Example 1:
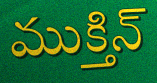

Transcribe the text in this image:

ముక్తిన్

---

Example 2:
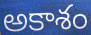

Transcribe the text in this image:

అకాశం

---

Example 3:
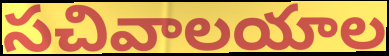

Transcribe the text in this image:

సచివాలయాల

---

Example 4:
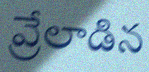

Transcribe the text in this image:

వ్రేలాడిన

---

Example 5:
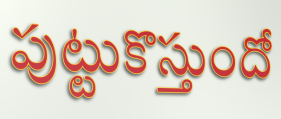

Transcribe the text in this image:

పుట్టుకొస్తుందో